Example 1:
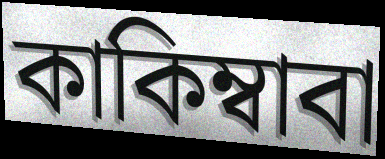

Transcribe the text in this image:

কাকিম্বাবা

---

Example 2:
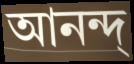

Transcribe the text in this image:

আনন্দ্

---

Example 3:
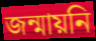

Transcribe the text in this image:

জন্মায়নি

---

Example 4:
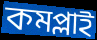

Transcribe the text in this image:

কমপ্লাই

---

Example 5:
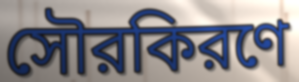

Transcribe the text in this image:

সৌরকিরণে